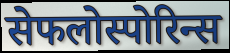
सेफलोस्पोरिन्स